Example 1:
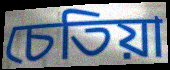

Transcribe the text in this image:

চেতিয়া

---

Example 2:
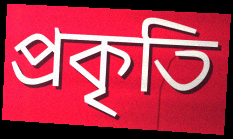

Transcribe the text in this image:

প্ৰকৃতি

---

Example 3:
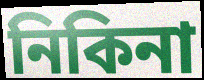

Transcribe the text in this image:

নিকিনা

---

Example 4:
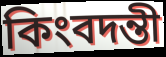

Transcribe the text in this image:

কিংবদন্তী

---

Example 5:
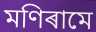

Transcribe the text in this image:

মণিৰামে